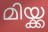
മിയ്ക്ക